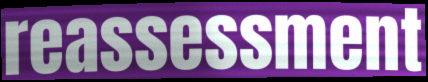
reassessment